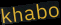
khabo